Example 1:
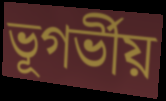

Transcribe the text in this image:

ভূগর্ভীয়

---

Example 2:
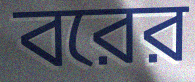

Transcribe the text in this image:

বরের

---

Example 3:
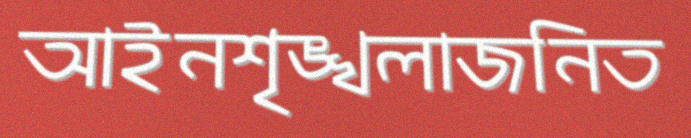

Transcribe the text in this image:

আইনশৃঙ্খলাজনিত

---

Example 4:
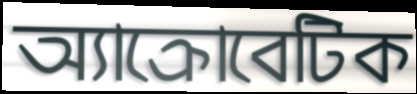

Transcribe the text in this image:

অ্যাক্রোবেটিক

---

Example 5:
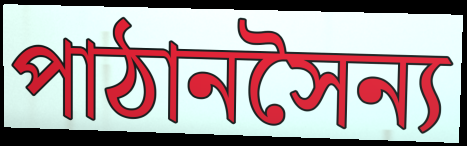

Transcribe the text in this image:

পাঠানসৈন্য